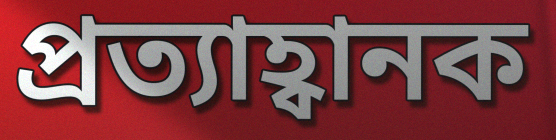
প্ৰত্যাহ্বানক